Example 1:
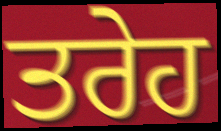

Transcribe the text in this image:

ਤਰੇਹ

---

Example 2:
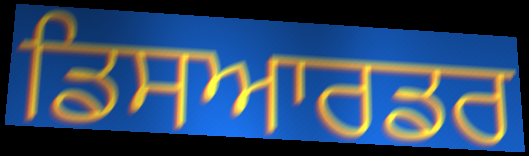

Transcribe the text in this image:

ਡਿਸਆਰਡਰ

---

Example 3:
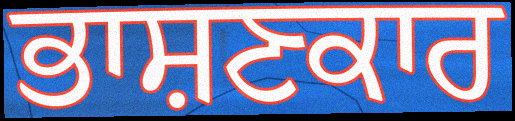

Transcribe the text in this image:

ਭਾਸ਼ਣਕਾਰ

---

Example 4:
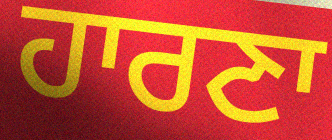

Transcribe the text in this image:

ਹਾਰਣਾ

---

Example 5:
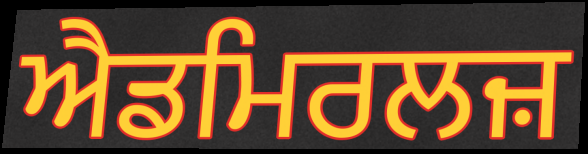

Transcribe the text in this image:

ਐਡਮਿਰਲਜ਼